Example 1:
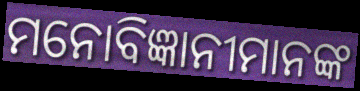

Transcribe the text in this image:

ମନୋବିଜ୍ଞାନୀମାନଙ୍କ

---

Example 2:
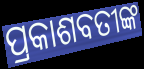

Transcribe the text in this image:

ପ୍ରକାଶବତୀଙ୍କ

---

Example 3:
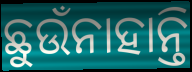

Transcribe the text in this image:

ଛୁଉଁନାହାନ୍ତି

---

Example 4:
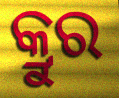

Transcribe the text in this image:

କ୍ରୁର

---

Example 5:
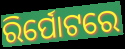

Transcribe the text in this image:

ରିର୍ପୋଟରେ